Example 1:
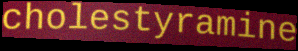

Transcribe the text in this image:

cholestyramine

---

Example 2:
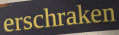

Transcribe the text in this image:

erschraken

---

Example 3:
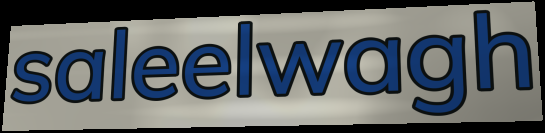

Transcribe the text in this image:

saleelwagh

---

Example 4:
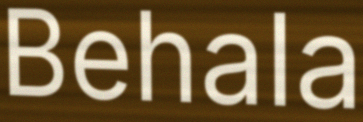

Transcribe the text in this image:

Behala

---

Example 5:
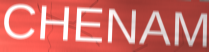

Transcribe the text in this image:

CHENAM